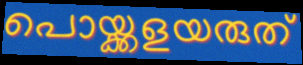
പൊയ്ക്കളയരുത്